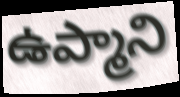
ఉప్మాని